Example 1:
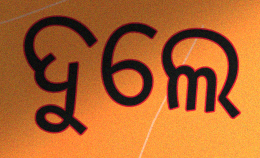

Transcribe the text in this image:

ଦୁଲେ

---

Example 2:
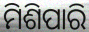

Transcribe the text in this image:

ମିଶିପାରି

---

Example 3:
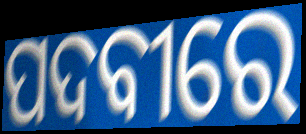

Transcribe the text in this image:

ପଦବୀରେ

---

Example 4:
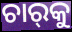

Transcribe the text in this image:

ଚାର୍‌କୁ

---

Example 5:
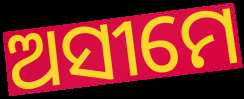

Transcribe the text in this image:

ଅସୀମେ